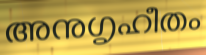
അനുഗൃഹീതം